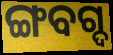
ଙ୍ଗବଗ୍ଦ